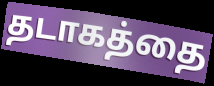
தடாகத்தை